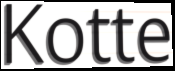
Kotte